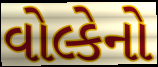
વોલ્કેનો